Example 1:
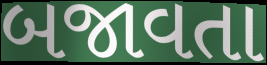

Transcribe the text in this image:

બજાવતા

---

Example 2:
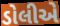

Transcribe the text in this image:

ડોલીએ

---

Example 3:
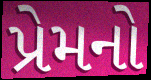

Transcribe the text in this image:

પ્રેમનો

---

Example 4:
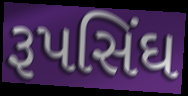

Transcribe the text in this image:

રૂપસિંઘ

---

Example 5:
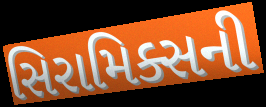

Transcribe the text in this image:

સિરામિક્સની